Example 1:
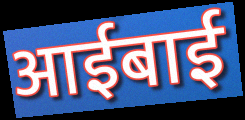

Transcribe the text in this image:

आईबाई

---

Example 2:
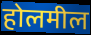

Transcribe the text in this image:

होलमील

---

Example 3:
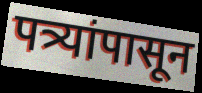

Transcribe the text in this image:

पत्र्यांपासून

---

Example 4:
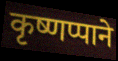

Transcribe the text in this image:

कृष्णप्पाने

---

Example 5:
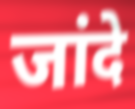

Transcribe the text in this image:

जांदे